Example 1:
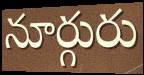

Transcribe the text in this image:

నూర్గురు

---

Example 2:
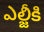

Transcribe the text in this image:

ఎల్జీకి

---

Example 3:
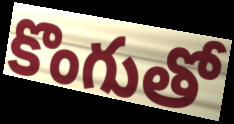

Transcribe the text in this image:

కొంగుతో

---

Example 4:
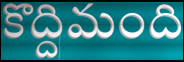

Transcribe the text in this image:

కొద్దిమంది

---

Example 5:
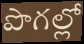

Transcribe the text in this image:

పొగల్లో